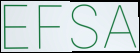
EFSA